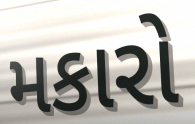
મકારો